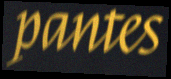
pantes